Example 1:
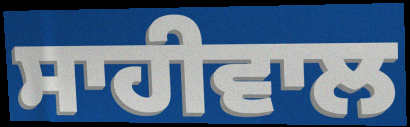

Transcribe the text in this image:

ਸਾਹੀਵਾਲ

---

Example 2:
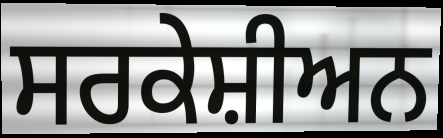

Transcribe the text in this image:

ਸਰਕੇਸ਼ੀਅਨ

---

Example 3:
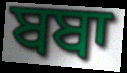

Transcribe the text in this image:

ਬਬਾ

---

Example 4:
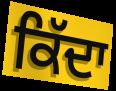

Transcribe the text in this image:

ਕਿੱਦਾ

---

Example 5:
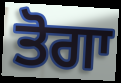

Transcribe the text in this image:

ਤੋਗਾ